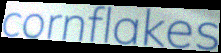
cornflakes